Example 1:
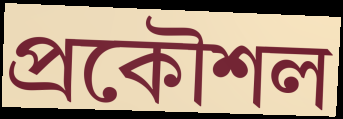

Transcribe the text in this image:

প্ৰকৌশল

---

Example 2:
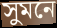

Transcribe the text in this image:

সুমনে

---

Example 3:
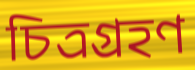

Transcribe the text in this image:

চিত্ৰগ্ৰহণ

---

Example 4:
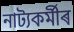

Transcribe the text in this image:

নাট্যকৰ্মীৰ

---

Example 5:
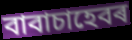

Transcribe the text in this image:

বাবাচাহেবৰ